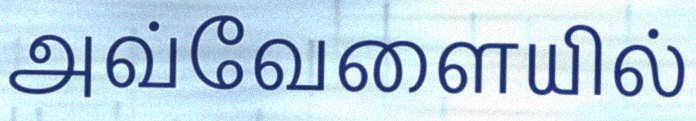
அவ்வேளையில்